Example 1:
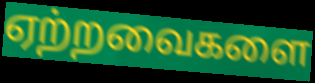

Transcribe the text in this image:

ஏற்றவைகளை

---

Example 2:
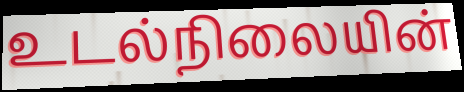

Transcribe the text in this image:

உடல்நிலையின்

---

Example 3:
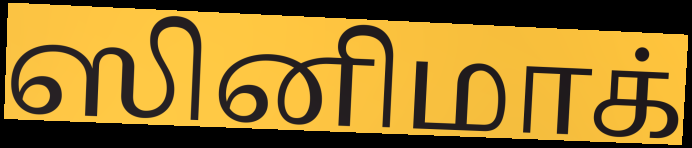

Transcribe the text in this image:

ஸினிமாக்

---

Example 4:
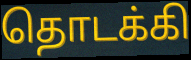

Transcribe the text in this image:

தொடக்கி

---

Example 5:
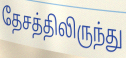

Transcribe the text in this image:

தேசத்திலிருந்து